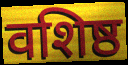
वशिष्ठ